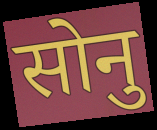
सोनु